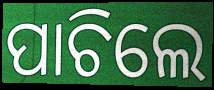
ପାଚିଲେ